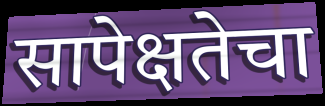
सापेक्षतेचा